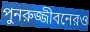
পুনরুজ্জীবনেরও